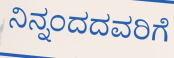
ನಿನ್ನಂದದವರಿಗೆ